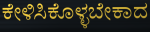
ಕೇಳಿಸಿಕೊಳ್ಳಬೇಕಾದ